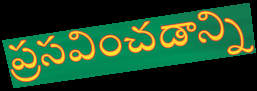
ప్రసవించడాన్ని